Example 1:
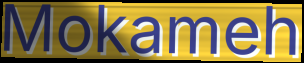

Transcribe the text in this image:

Mokameh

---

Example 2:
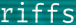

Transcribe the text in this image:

riffs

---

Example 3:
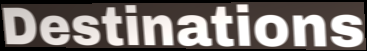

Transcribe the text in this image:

Destinations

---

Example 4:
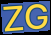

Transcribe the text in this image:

ZG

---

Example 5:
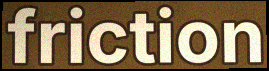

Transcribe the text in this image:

friction